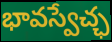
భావస్వేచ్ఛ